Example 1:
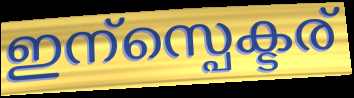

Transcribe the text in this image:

ഇന്സ്പെക്ടര്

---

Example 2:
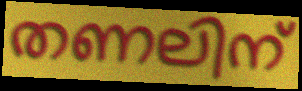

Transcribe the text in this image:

തണലിന്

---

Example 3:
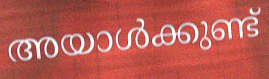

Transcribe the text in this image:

അയാൾക്കുണ്ട്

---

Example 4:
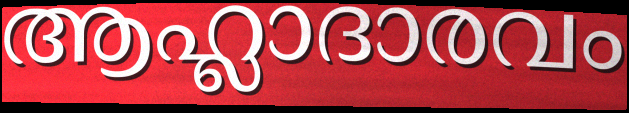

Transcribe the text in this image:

ആഹ്ലാദാരവം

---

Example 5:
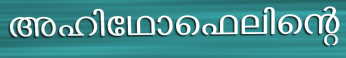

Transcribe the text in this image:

അഹിഥോഫെലിന്റെ